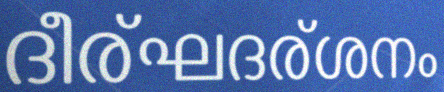
ദീര്ഘദര്ശനം